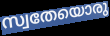
സ്വതേയൊരു